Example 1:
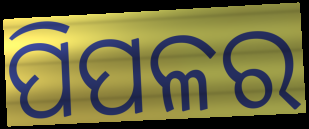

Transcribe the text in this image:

ପିପଳର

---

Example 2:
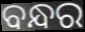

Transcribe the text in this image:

ବନ୍ଧର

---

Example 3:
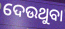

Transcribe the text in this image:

ଦେଉଥୁବା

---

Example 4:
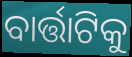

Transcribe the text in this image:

ବାର୍ତ୍ତାଟିକୁ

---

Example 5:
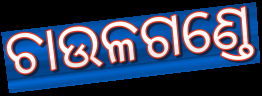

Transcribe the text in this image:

ଚାଉଳଗଣ୍ଡେ